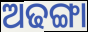
ଅଢଙ୍ଗା